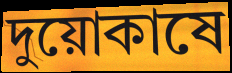
দুয়োকাষে